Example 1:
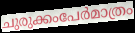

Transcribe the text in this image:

ചുരുക്കംപേർമാത്രം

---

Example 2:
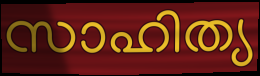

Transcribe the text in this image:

സാഹിത്യ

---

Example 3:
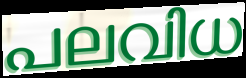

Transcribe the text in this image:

പലവിധ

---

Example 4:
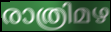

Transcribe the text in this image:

രാത്രിമഴ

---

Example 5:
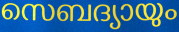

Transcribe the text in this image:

സെബദ്യായും